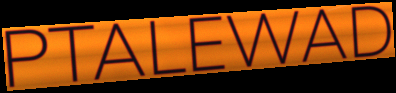
PTALEWAD